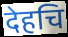
देहचि